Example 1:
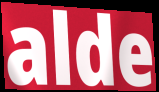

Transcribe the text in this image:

alde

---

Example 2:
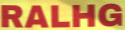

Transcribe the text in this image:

RALHG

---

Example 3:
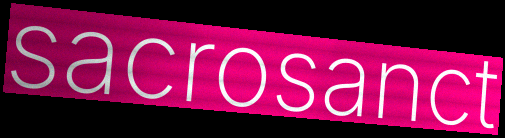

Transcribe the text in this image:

sacrosanct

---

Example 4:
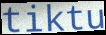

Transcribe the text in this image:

tiktu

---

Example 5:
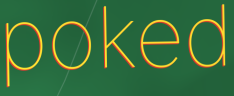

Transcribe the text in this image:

poked